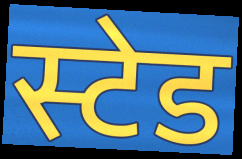
स्टेड